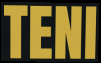
TENI